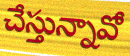
చేస్తున్నావో